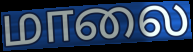
மாலை